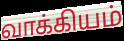
வாக்கியம்